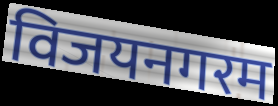
विजयनगरम